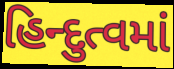
હિન્દુત્વમાં